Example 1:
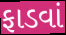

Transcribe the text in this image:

ફાડવાં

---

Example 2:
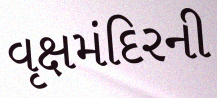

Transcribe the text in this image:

વૃક્ષમંદિરની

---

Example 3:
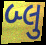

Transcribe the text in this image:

બ્લુ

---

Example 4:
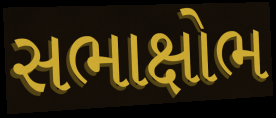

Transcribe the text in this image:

સભાક્ષોભ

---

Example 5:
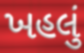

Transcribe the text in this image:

ખહલું